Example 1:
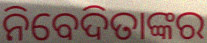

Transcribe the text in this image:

ନିବେଦିତାଙ୍କର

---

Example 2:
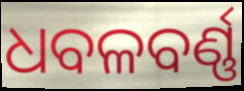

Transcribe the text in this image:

ଧବଳବର୍ଣ୍ଣ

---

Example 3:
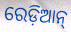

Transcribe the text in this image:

ରେଡ଼ିଆନ୍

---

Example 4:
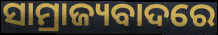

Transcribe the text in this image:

ସାମ୍ରାଜ୍ୟବାଦରେ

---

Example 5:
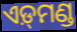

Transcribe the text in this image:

ଏଡ଼୍‌ମଣ୍ଡ